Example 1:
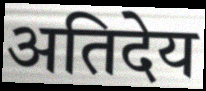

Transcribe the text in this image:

अतिदेय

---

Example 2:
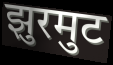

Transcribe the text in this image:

झुरमुट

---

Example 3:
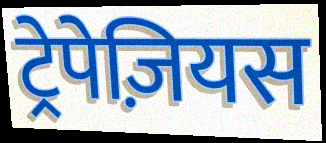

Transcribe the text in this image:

ट्रेपेज़ियस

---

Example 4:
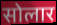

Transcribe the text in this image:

सोलार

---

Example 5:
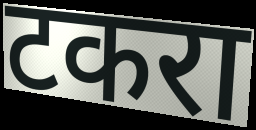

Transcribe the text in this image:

टकरा